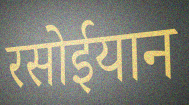
रसोईयान